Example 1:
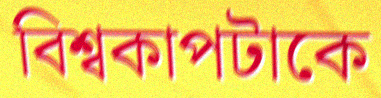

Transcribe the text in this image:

বিশ্বকাপটাকে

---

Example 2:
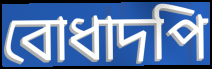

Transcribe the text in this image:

বোধাদপি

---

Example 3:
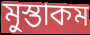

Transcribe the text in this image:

মুস্তাকম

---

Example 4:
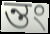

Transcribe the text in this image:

ন্তং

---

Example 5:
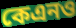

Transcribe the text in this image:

কেএনও